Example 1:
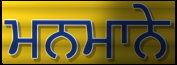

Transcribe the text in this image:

ਮਨਮਾਨੇ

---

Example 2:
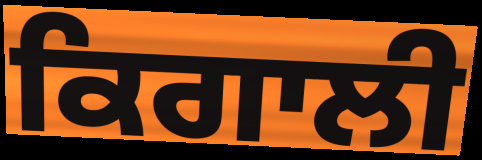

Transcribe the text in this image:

ਕਿਗਾਲੀ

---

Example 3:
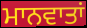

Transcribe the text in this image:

ਮਾਨਵਾਤਾਂ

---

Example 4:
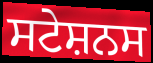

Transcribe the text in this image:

ਸਟੇਸ਼ਨਸ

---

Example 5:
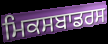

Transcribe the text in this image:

ਮਿਕਸਬਾਡਰਸ